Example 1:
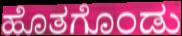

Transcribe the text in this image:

ಹೊತಗೊಂಡು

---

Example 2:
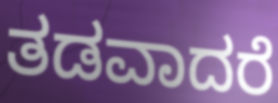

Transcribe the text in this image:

ತಡವಾದರೆ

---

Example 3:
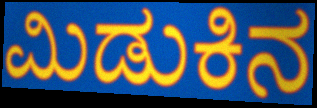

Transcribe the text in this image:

ಮಿಡುಕಿನ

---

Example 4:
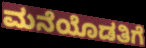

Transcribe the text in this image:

ಮನೆಯೊಡತಿಗೆ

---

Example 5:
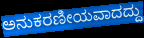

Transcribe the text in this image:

ಅನುಕರಣೀಯವಾದದ್ದು